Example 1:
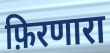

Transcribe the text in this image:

फ़िरणारा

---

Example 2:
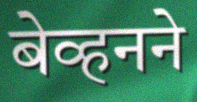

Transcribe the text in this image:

बेव्हनने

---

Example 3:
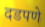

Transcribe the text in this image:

दडपणे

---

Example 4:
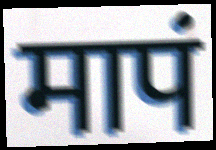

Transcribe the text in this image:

मापं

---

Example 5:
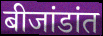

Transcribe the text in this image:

बीजांडांत